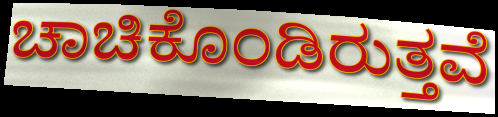
ಚಾಚಿಕೊಂಡಿರುತ್ತವೆ